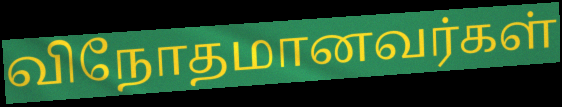
விநோதமானவர்கள்